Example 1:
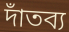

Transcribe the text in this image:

দাঁতব্য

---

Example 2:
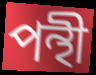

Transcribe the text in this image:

পন্থী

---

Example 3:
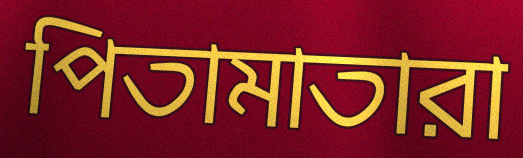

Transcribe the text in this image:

পিতামাতারা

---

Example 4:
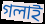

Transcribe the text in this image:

গলাই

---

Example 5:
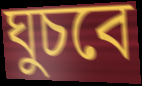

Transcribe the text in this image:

ঘুচবে